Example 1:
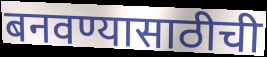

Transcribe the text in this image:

बनवण्यासाठीची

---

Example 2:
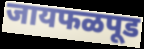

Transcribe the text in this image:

जायफळपूड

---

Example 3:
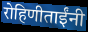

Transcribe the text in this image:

रोहिणीताईंनी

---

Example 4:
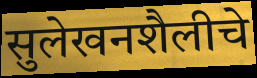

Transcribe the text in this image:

सुलेखनशैलीचे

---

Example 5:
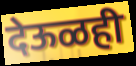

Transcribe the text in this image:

देऊळही